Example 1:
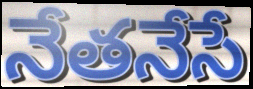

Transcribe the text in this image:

నేతనేసే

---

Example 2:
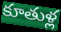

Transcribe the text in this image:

కూతుళ్ల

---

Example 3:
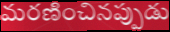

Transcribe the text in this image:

మరణించినప్పుడు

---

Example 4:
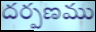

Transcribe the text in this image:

దర్పణము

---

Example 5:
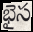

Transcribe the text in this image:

భైస